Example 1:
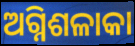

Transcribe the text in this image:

ଅଗ୍ନିଶଳାକା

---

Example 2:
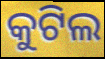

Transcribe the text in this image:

କୁଟିଲ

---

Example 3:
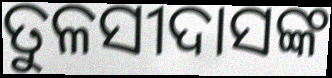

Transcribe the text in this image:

ତୁଳସୀଦାସଙ୍କ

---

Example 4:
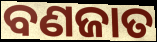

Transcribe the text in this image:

ବଣଜାତ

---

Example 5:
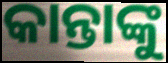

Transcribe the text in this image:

କାନ୍ତାଙ୍କୁ